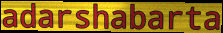
adarshabarta